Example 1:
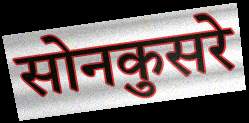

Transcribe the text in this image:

सोनकुसरे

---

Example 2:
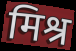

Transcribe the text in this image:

मिश्र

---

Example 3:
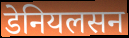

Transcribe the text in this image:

डेनियलसन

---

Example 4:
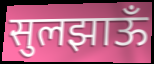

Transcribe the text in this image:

सुलझाऊँ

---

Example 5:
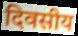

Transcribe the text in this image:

दिवसीय